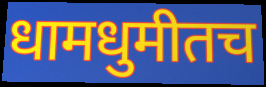
धामधुमीतच